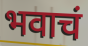
भवाचं